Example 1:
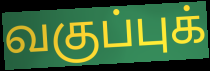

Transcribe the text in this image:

வகுப்புக்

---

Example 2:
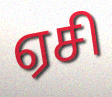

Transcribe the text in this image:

ஏசி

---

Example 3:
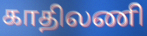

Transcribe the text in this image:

காதிலணி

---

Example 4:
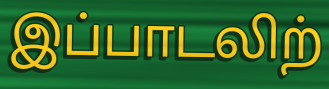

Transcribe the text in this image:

இப்பாடலிற்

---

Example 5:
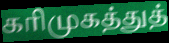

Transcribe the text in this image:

கரிமுகத்துத்